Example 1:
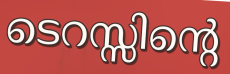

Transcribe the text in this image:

ടെറസ്സിന്റെ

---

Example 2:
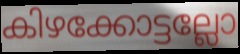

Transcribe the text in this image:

കിഴക്കോട്ടല്ലോ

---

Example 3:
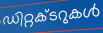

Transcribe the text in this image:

ഡിറ്റക്ടറുകൾ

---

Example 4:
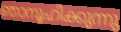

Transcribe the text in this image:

ഞാനൂഹിക്കുന്നു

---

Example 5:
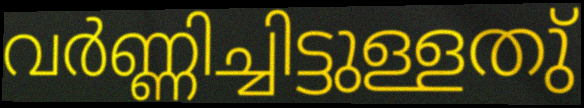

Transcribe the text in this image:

വർണ്ണിച്ചിട്ടുള്ളതു്